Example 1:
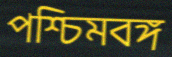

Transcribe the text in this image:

পশ্চিমবঙ্গ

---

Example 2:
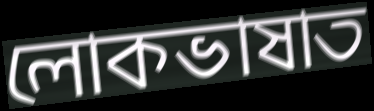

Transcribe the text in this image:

লোকভাষাত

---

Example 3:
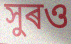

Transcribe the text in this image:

সুৰও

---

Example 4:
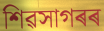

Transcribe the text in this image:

শিৱসাগৰৰ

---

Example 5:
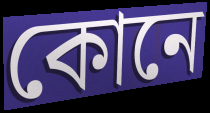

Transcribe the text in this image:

কোনে